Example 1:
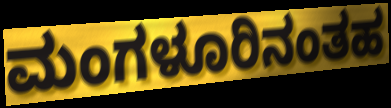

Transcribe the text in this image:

ಮಂಗಳೂರಿನಂತಹ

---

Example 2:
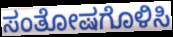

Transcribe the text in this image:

ಸಂತೋಷಗೊಳಿಸಿ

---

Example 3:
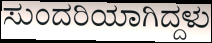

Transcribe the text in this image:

ಸುಂದರಿಯಾಗಿದ್ದಳು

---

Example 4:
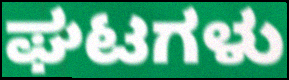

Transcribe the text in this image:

ಘಟಗಳು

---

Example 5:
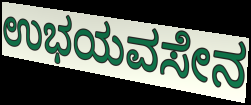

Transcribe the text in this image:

ಉಭಯವಸೇನ